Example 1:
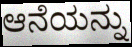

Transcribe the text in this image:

ಆನೆಯನ್ನು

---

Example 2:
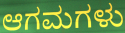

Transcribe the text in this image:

ಆಗಮಗಳು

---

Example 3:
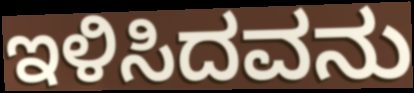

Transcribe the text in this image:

ಇಳಿಸಿದವನು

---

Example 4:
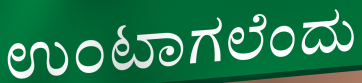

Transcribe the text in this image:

ಉಂಟಾಗಲೆಂದು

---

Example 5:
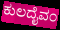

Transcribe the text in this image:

ಕುಲದೈವಂ